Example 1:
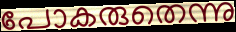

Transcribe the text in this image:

പോകരുതെന്നു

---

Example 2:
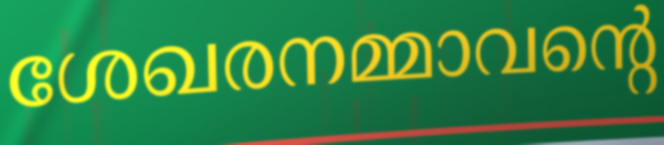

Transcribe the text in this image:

ശേഖരനമ്മാവന്റെ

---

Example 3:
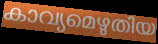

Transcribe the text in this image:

കാവ്യമെഴുതിയ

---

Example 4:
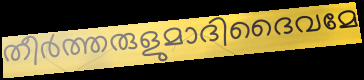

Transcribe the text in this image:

തീർത്തരുളുമാദിദൈവമേ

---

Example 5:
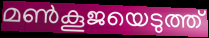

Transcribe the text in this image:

മൺകൂജയെടുത്ത്